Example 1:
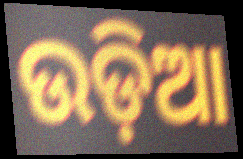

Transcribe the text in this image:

ଉଡ଼ିଆ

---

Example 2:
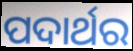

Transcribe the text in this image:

ପଦାର୍ଥର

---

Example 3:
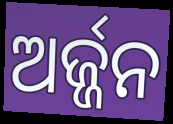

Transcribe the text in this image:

ଅର୍ଜ୍ଜନ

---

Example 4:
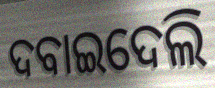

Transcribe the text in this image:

ଦବାଇଦେଲି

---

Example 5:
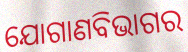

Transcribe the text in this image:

ଯୋଗାଣବିଭାଗର